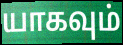
யாகவும்